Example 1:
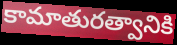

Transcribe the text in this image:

కామాతురత్వానికి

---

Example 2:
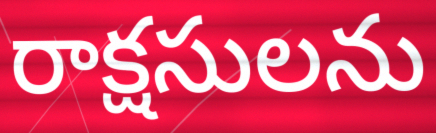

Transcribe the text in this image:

రాక్షసులను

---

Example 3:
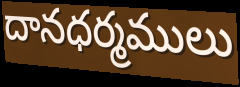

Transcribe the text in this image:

దానధర్మములు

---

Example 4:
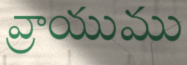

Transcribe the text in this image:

వ్రాయుము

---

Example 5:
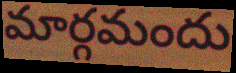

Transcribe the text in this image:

మార్గమందు